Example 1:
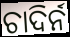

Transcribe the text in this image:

ଚାଦିର୍ନ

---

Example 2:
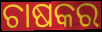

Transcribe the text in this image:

ଚାଷକର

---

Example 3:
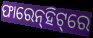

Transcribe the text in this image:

ଫାରେନ୍‌ହିଟ୍‌ରେ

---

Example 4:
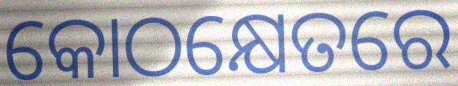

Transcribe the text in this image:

କୋଠକ୍ଷେତରେ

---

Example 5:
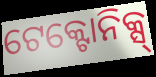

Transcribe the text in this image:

ଟେକ୍ଟୋନିକ୍ସ୍